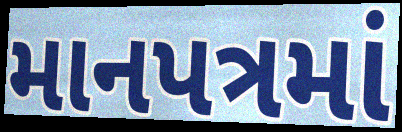
માનપત્રમાં